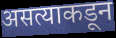
असत्याकडून